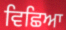
ਵਿਛਿਆ